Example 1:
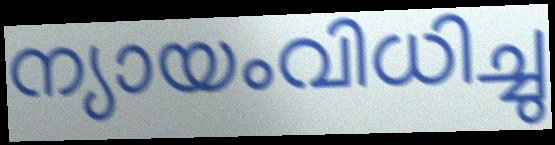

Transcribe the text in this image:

ന്യായംവിധിച്ചു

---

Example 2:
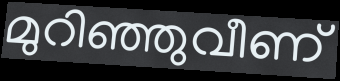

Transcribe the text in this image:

മുറിഞ്ഞുവീണ്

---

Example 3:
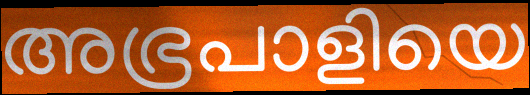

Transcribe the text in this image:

അഭ്രപാളിയെ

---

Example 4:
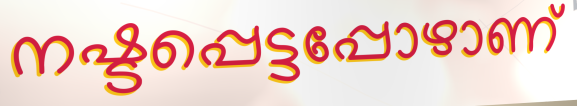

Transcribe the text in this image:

നഷ്ടപ്പെട്ടപ്പോഴാണ്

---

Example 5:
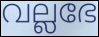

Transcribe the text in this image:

വല്ലഭേ